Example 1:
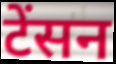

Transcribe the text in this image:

टेंसन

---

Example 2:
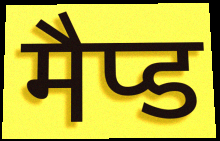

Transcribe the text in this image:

मैप्ड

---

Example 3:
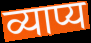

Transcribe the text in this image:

व्याप्य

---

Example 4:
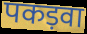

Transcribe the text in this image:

पकड़वा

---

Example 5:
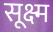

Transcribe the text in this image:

सूक्ष्‍म